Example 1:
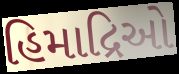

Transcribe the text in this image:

હિમાદ્રિઓ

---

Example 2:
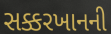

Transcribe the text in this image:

સક્કરખાનની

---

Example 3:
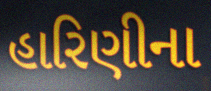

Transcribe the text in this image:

હારિણીના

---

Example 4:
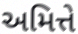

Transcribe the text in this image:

અમિત્તે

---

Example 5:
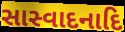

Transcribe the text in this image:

સાસ્વાદનાદિ